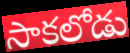
సాకలోడు